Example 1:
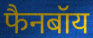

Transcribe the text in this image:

फैनबॉय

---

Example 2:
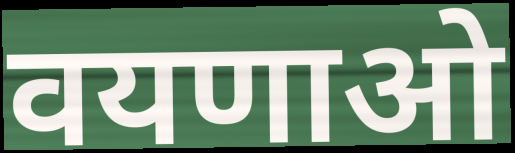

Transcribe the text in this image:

वयणाओ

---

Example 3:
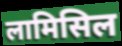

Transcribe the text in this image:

लामिसिल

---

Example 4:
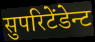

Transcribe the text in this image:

सुपरिटेंडेन्ट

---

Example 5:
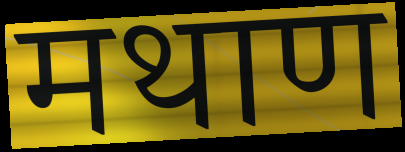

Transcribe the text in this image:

मथाण